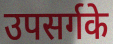
उपसर्गके